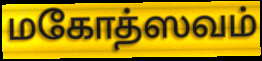
மகோத்ஸவம்